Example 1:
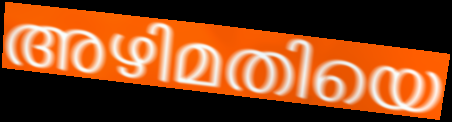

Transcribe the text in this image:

അഴിമതിയെ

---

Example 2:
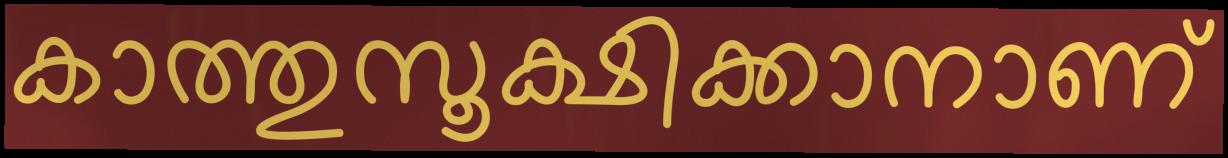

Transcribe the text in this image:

കാത്തുസൂക്ഷിക്കാനാണ്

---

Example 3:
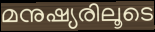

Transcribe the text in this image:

മനുഷ്യരിലൂടെ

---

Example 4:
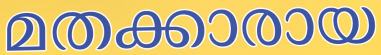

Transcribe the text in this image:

മതക്കാരായ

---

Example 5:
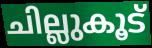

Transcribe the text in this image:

ചില്ലുകൂട്